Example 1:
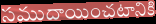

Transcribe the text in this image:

సముదాయించటానికి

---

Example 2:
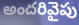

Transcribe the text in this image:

అందరివైపు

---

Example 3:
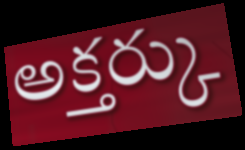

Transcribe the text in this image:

అక్తర్కు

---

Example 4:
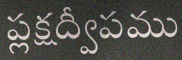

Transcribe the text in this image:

ప్లక్షద్వీపము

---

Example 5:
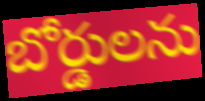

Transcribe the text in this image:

బోర్డులను